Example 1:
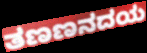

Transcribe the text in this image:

ತಣಣನದಯ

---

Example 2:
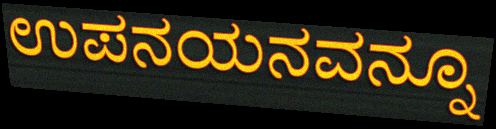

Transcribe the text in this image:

ಉಪನಯನವನ್ನೂ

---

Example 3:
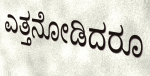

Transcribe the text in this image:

ಎತ್ತನೋಡಿದರೂ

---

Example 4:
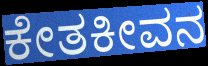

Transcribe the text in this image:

ಕೇತಕೀವನ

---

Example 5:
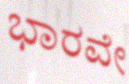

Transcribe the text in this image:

ಭಾರವೇ